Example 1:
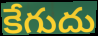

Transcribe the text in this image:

కేగుదు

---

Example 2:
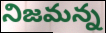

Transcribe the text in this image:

నిజమన్న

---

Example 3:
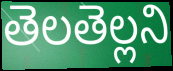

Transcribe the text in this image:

తెలతెల్లని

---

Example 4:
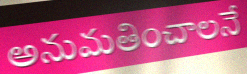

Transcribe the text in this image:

అనుమతించాలనే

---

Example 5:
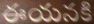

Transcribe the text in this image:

ఈయనకి